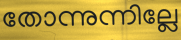
തോന്നുന്നില്ലേ